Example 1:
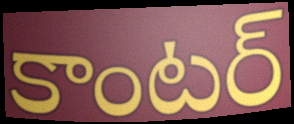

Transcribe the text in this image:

కాంటర్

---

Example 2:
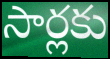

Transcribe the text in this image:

సార్లకు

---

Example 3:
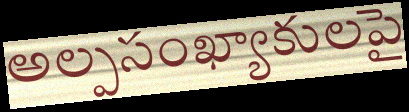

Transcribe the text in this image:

అల్పసంఖ్యాకులపై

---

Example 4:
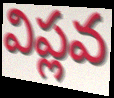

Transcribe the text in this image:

విప్లవ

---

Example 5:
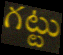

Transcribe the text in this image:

గట్టు